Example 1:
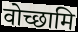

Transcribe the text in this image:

वोच्छामि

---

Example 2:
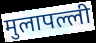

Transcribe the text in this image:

मुलापल्ली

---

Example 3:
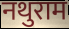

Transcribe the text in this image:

नथुराम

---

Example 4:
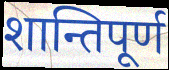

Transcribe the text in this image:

शान्तिपूर्ण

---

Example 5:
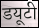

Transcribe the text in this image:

डयूटी